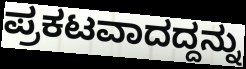
ಪ್ರಕಟವಾದದ್ದನ್ನು